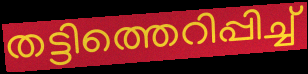
തട്ടിത്തെറിപ്പിച്ച്